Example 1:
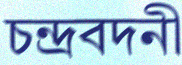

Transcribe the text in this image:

চন্দ্রবদনী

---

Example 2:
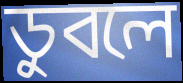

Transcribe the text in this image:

ডুবলে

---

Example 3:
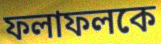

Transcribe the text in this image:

ফলাফলকে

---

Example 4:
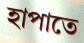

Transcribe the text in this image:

হাপাতে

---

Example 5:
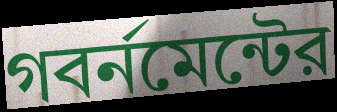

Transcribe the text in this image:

গবর্নমেন্টের